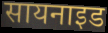
सायनाइड